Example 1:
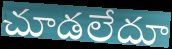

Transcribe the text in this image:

చూడలేదూ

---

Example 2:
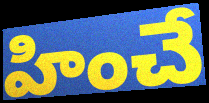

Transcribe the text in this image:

హించే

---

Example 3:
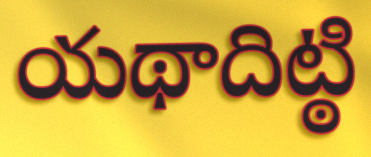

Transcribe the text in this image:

యథాదిట్ఠి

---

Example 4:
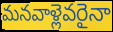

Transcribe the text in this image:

మనవాళ్లెవరైనా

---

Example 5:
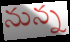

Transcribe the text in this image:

నున్న